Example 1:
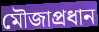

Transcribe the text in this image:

মৌজাপ্রধান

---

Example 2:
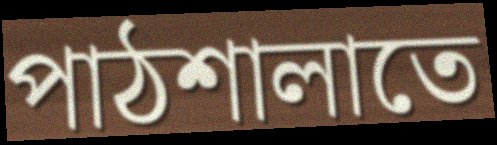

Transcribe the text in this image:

পাঠশালাতে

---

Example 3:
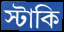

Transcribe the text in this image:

স্টাকি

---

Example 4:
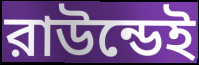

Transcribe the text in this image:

রাউন্ডেই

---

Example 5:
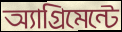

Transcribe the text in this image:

অ্যাগ্রিমেন্টে